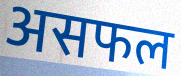
असफल